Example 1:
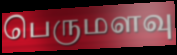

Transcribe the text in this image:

பெருமளவு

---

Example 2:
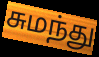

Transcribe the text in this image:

சுமந்து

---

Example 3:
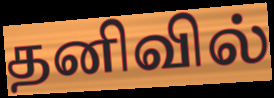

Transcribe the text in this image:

தனிவில்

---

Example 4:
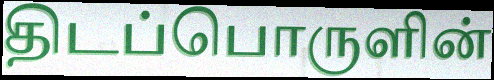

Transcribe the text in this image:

திடப்பொருளின்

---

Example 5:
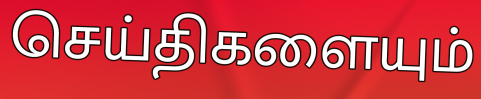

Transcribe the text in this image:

செய்திகளையும்